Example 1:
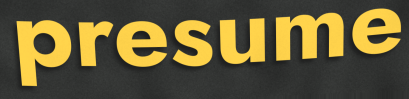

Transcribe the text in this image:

presume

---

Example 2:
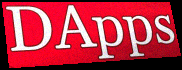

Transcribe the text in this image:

DApps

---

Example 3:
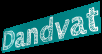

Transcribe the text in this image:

Dandvat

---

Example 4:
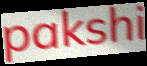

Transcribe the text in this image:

pakshi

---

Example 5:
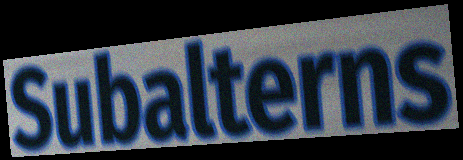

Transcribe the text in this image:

Subalterns